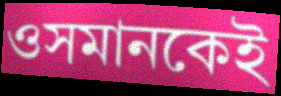
ওসমানকেই